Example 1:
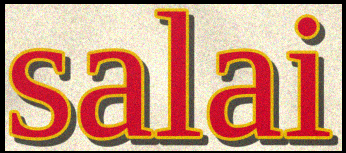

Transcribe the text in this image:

salai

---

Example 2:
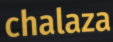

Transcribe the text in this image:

chalaza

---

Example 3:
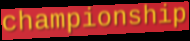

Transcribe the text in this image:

championship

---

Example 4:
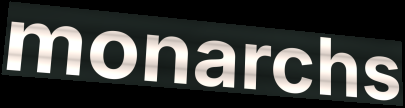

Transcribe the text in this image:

monarchs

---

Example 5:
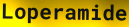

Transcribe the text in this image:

Loperamide